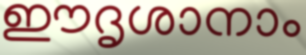
ഈദൃശാനാം